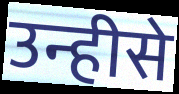
उन्हीसे